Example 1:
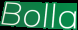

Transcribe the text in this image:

Bolla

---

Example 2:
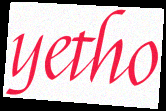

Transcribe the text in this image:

yetho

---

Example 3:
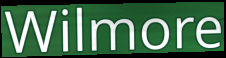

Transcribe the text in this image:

Wilmore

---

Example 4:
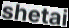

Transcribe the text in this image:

shetai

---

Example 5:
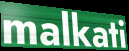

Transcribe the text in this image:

malkati